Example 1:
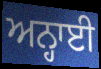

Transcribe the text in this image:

ਅਨ੍ਹਾਈ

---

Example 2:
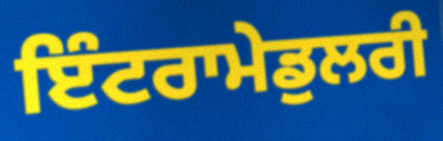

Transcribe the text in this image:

ਇੰਟਰਾਮੇਡੁਲਰੀ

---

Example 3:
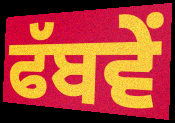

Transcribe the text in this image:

ਫੱਬਵੇਂ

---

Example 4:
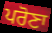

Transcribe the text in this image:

ਪਰੋਣਾ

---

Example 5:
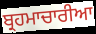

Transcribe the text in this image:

ਬ੍ਰਹਮਾਚਾਰੀਆ